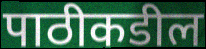
पाठीकडील